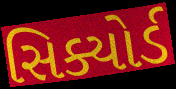
સિક્યોર્ડ